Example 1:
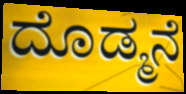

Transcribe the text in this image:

ದೊಡ್ಮನೆ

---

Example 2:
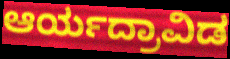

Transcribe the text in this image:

ಆರ್ಯದ್ರಾವಿಡ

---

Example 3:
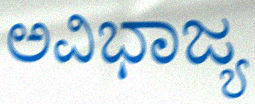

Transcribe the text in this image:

ಅವಿಭಾಜ್ಯ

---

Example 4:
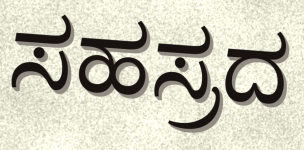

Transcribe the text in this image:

ಸಹಸ್ರದ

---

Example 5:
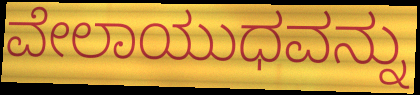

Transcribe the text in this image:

ವೇಲಾಯುಧವನ್ನು